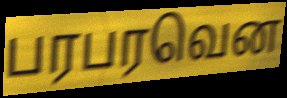
பரபரவென